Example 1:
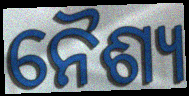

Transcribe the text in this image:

ନୈଶ୍ୟ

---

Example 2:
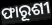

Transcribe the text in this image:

ଫାରୂଶୀ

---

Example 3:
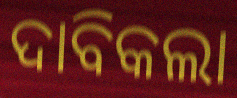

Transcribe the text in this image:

ଦାବିକଲା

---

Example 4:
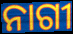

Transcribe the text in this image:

ନାଗୀ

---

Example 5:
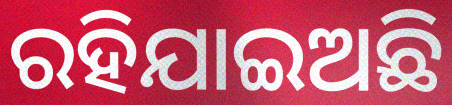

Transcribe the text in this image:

ରହିଯାଇଅଛି